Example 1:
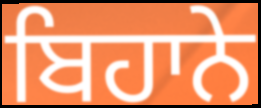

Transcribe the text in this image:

ਬਿਹਾਨੇ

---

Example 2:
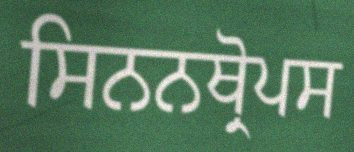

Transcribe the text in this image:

ਸਿਨਨਥ੍ਰੋਪਸ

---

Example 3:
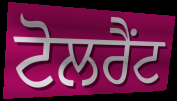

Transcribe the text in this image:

ਟੋਲਰੈਂਟ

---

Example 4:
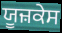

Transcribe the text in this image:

ਯੂਜ਼ਕੇਸ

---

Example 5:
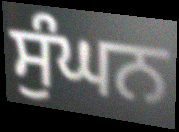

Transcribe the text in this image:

ਸੁੰਘਨ